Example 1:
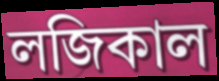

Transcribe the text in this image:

লজিকাল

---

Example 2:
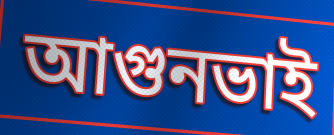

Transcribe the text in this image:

আগুনভাই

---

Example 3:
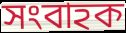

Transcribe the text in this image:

সংবাহক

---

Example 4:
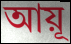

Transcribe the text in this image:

আয়ূ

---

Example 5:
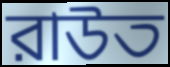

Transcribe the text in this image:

রাউত